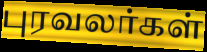
புரவலர்கள்